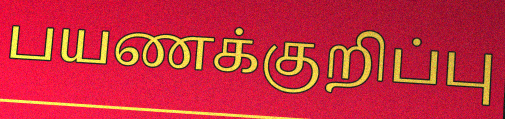
பயணக்குறிப்பு